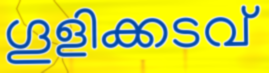
ഗൂളിക്കടവ്